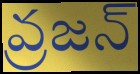
వ్రజన్